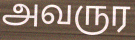
அவருர